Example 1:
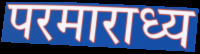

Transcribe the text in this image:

परमाराध्य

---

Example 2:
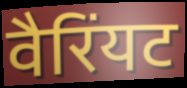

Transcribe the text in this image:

वैरिंयट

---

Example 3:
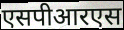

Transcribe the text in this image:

एसपीआरएस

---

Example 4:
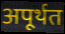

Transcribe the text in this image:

अपूर्थत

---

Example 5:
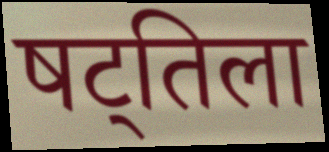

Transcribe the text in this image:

षट्तिला